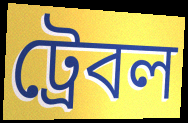
ট্রেবল